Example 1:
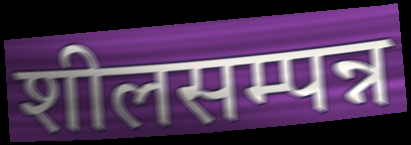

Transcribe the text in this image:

शीलसम्पन्न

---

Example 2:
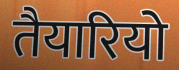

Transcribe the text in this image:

तैयारियो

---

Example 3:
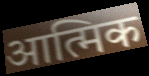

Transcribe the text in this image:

आत्मिक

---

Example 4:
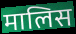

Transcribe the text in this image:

मालिस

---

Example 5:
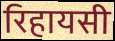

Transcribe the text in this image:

रिहायसी